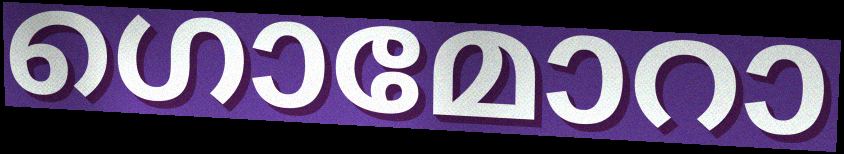
ഗൊമോറാ